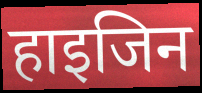
हाइजिन